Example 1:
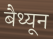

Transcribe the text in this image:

बैथ्यून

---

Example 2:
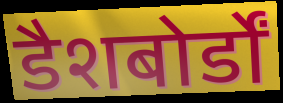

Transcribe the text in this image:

डैशबोर्डों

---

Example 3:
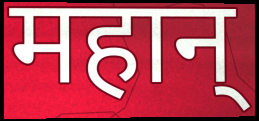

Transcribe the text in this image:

महान्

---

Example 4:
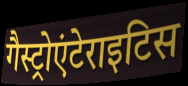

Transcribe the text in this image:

गैस्ट्रोएंटेराइटिस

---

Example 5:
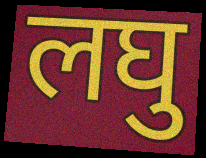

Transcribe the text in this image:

लघु